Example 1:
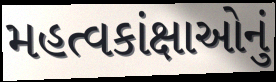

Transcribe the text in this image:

મહત્વકાંક્ષાઓનું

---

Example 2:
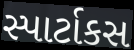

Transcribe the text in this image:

સ્પાર્ટાકસ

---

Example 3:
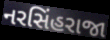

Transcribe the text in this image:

નરસિંહરાજા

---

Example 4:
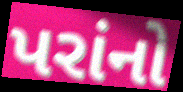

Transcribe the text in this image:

પરાંનો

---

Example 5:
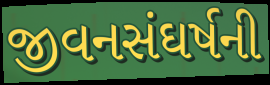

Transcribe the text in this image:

જીવનસંઘર્ષની